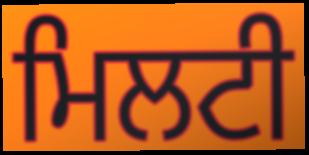
ਮਿਲਟੀ